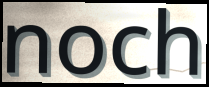
noch